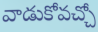
వాడుకోవచ్చో